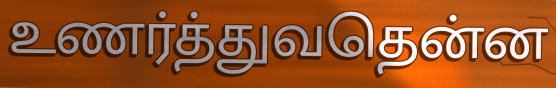
உணர்த்துவதென்ன